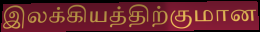
இலக்கியத்திற்குமான